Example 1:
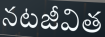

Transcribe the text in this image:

నటజీవిత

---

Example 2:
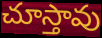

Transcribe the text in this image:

చూస్తావు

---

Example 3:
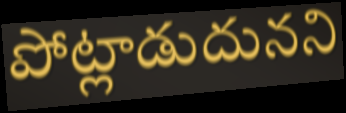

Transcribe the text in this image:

పోట్లాడుదునని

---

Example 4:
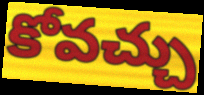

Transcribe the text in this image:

కోవచ్చు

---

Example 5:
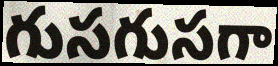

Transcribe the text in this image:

గుసగుసగా